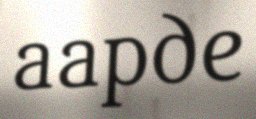
aapde